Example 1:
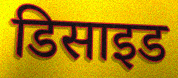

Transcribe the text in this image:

डिसाइड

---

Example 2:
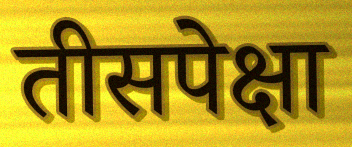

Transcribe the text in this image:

तीसपेक्षा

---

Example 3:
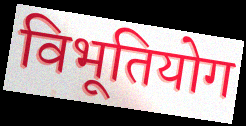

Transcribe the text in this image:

विभूतियोग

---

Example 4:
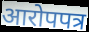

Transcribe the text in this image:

आरोपपत्र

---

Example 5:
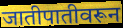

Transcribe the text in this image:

जातीपातीवरून